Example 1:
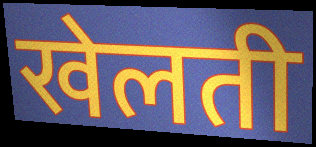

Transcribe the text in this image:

खेलती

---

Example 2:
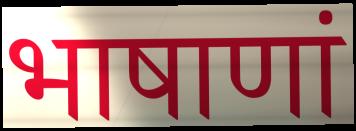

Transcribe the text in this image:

भाषाणां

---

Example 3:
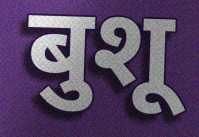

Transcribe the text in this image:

बुशू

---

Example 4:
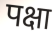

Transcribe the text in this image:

पक्षा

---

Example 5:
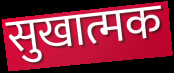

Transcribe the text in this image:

सुखात्मक